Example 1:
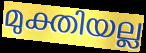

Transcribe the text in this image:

മുക്തിയല്ല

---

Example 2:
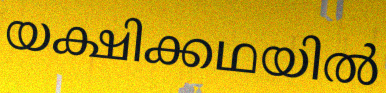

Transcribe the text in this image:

യക്ഷിക്കഥയിൽ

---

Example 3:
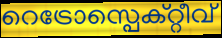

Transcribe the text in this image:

റെട്രോസ്പെക്റ്റീവ്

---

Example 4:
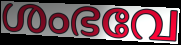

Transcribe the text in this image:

ശംഭവേ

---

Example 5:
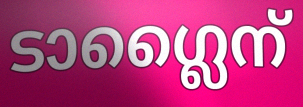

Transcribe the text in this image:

ടാഗ്ലൈന്